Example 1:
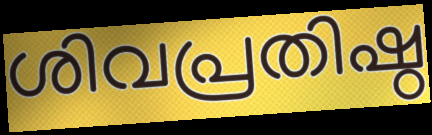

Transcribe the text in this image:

ശിവപ്രതിഷ്ഠ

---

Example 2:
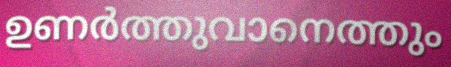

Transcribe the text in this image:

ഉണർത്തുവാനെത്തും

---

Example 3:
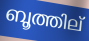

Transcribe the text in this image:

ബൂത്തില്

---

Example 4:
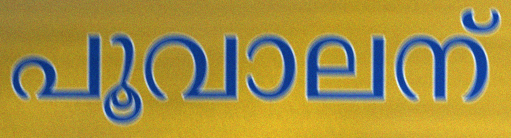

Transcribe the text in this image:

പൂവാലന്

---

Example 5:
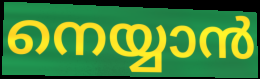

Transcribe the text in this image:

നെയ്യാൻ